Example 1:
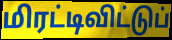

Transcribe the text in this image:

மிரட்டிவிட்டுப்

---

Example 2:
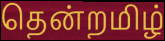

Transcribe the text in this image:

தென்றமிழ்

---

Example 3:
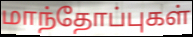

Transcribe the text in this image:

மாந்தோப்புகள்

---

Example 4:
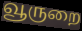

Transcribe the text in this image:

வூருறை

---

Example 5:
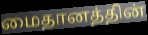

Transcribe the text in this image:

மைதானத்தின்